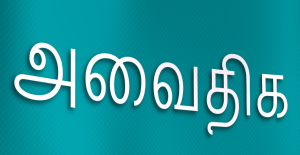
அவைதிக